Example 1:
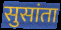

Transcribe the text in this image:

सुसांता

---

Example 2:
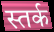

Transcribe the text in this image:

स्तर्क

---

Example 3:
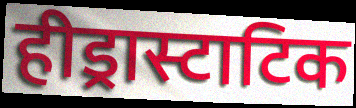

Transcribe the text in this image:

हीड्रास्टाटिक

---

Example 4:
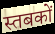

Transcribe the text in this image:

स्तबकों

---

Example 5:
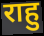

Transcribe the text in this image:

राहु